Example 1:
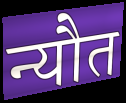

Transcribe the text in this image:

न्यौत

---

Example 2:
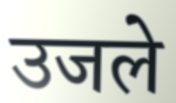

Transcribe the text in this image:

उजले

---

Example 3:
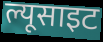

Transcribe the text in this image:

ल्यूसाइट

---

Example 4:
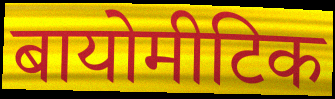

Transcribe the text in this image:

बायोमीटिक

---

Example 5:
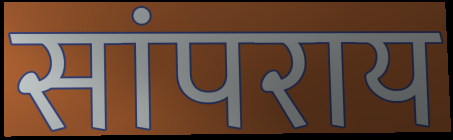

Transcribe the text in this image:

सांपराय